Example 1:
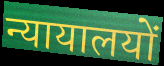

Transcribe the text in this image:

न्यायालयों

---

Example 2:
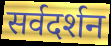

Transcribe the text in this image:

सर्वदर्शन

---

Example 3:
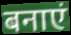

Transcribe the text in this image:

बनाएं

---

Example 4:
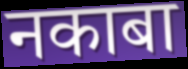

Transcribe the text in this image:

नकाबा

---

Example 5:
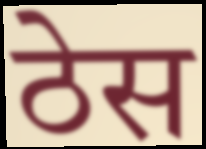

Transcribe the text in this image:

ठेस